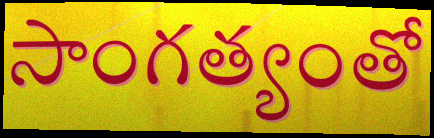
సాంగత్యంతో